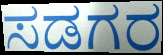
ಸಡಗರ